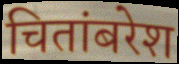
चितांबरेश